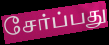
சேர்ப்பது